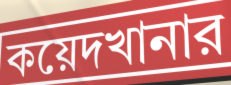
কয়েদখানার